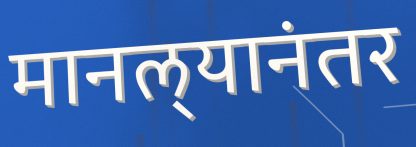
मानल्यानंतर